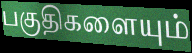
பகுதிகளையும்